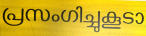
പ്രസംഗിച്ചുകൂടാ